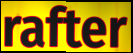
rafter